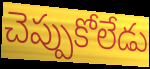
చెప్పుకోలేడు